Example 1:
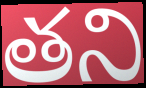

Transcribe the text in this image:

తని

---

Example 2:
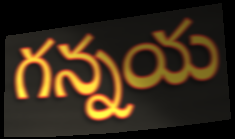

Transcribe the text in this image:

గన్నయ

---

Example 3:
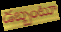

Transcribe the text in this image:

డబ్బంటూ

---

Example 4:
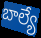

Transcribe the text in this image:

బాల్యే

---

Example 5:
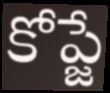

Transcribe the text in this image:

కోప్జే